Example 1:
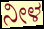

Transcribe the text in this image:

ನೀಳ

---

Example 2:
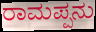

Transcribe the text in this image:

ರಾಮಪ್ಪನು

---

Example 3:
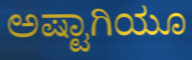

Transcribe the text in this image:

ಅಷ್ಟಾಗಿಯೂ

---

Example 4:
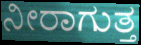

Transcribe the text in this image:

ನೀರಾಗುತ್ತ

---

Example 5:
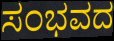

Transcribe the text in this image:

ಸಂಭವದ